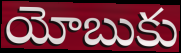
యోబుకు